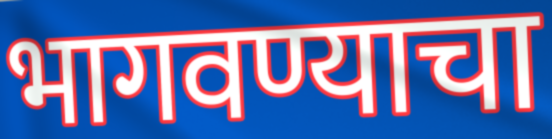
भागवण्याचा